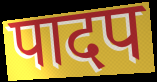
पादप